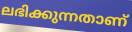
ലഭിക്കുന്നതാണ്